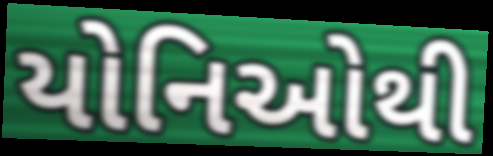
યોનિઓથી